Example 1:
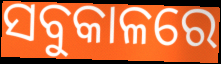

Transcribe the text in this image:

ସବୁକାଳରେ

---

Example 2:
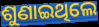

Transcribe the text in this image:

ଶୁଣାଇଥିଲେ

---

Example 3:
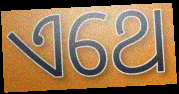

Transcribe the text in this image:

ଏଥେ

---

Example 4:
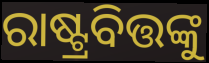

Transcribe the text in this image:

ରାଷ୍ଟ୍ରବିତ୍ତଙ୍କୁ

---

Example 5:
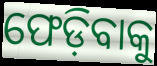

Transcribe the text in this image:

ଫେଡ଼ିବାକୁ